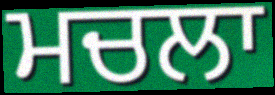
ਮਚਲਾ